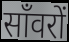
साँवरों